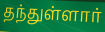
தந்துள்ளார்